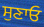
ਸੁਣਾਓ